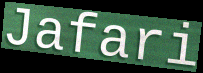
Jafari